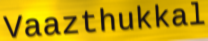
Vaazthukkal